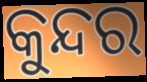
କୁନ୍ଦର